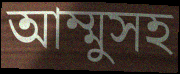
আম্মুসহ